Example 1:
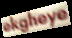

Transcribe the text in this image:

ekgheye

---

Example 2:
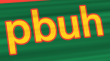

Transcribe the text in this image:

pbuh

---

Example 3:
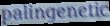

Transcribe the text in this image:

palingenetic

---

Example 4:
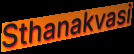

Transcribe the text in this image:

Sthanakvasi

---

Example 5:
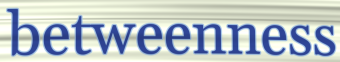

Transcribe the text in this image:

betweenness